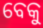
ବେକୁ